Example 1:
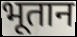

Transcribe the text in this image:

भूतान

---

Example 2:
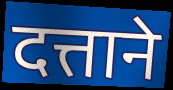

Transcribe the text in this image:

दत्ताने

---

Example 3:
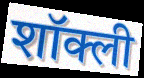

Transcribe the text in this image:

शॉक्ली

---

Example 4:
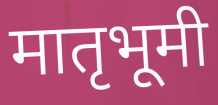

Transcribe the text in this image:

मातृभूमी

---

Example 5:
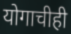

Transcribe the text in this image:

योगाचीही